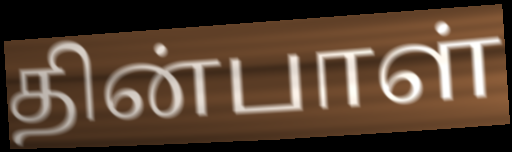
தின்பாள்